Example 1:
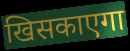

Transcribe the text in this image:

खिसकाएगा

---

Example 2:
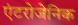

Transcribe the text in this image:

एंटरोजेनिक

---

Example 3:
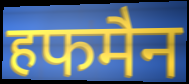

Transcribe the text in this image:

हफमैन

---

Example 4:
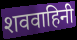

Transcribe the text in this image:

शववाहिनी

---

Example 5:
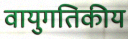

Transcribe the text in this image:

वायुगतिकीय